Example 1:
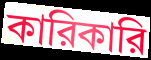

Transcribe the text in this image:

কারিকারি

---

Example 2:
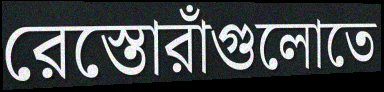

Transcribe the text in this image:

রেস্তোরাঁগুলোতে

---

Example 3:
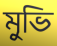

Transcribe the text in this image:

মুভি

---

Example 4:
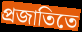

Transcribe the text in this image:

প্রজাতিতে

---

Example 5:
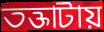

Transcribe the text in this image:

তক্তাটায়